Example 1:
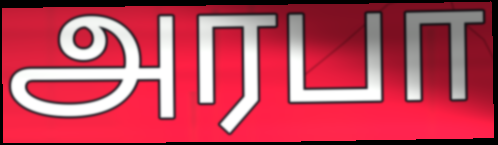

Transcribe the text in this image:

அரபா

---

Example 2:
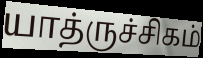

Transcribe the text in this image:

யாத்ருச்சிகம்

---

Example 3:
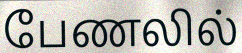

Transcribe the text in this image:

பேணலில்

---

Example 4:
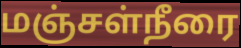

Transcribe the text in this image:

மஞ்சள்நீரை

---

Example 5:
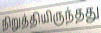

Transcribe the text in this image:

நிறுத்தியிருந்தது